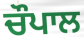
ਚੌਪਾਲ